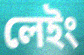
লেইং